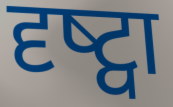
दृष्ट्वा